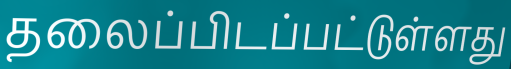
தலைப்பிடப்பட்டுள்ளது